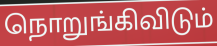
நொறுங்கிவிடும்